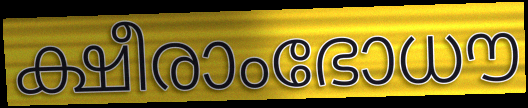
ക്ഷീരാംഭോധൗ